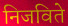
निजविते